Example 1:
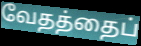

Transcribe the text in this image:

வேதத்தைப்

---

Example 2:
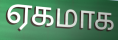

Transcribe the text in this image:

ஏகமாக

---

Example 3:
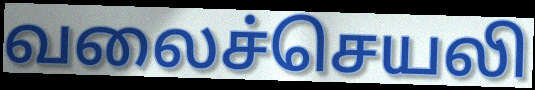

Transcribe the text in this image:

வலைச்செயலி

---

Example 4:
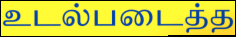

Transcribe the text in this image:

உடல்படைத்த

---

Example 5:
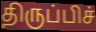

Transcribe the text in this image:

திருப்பிச்